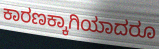
ಕಾರಣಕ್ಕಾಗಿಯಾದರೂ